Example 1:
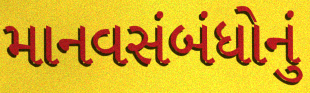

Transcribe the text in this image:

માનવસંબંધોનું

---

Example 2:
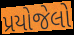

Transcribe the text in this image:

પ્રયોજેલો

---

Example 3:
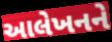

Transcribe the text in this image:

આલેખનને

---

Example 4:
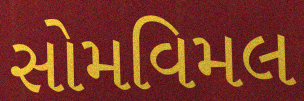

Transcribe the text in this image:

સોમવિમલ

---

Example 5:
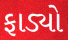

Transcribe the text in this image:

ફાડ્યો